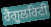
ਰੈਗੂਲਰਿਟੀ